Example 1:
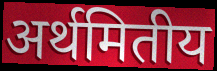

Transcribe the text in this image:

अर्थमितीय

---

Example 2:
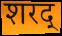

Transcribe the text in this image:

शरद्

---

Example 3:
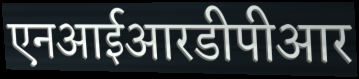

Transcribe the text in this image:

एनआईआरडीपीआर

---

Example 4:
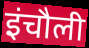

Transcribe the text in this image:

इंचौली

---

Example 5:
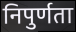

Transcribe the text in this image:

निपुर्णता